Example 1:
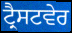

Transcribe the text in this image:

ਟ੍ਰੈਸਟਵੇਰ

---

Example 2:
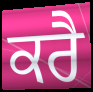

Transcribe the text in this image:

ਕਰੈ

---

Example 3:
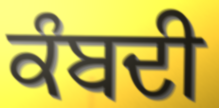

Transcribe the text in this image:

ਕੰਬਦੀ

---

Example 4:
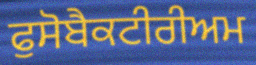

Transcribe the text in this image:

ਫੁਸੋਬੈਕਟੀਰੀਅਮ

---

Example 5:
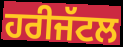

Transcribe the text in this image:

ਹਰੀਜੱਟਲ